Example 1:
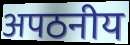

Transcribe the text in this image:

अपठनीय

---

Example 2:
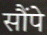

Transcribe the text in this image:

सौंपे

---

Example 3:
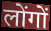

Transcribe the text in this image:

लोंगों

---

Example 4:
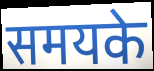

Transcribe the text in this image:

समयके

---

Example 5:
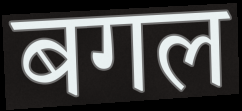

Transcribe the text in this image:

बगल